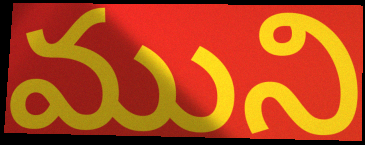
ముని